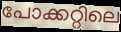
പോക്കറ്റിലെ